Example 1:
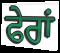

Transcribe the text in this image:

ਫੇਰਾਂ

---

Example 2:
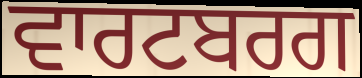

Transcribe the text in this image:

ਵਾਰਟਬਰਗ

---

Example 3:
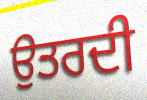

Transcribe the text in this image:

ਉਤਰਦੀ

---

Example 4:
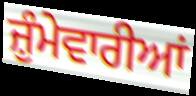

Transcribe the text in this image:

ਜ਼ੁੰਮੇਵਾਰੀਆਂ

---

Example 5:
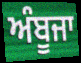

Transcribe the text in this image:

ਅੰਬੂਜਾ